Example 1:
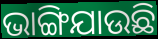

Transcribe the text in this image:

ଭାଙ୍ଗିଯାଉଛି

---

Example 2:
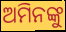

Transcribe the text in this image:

ଅମିନଙ୍କୁ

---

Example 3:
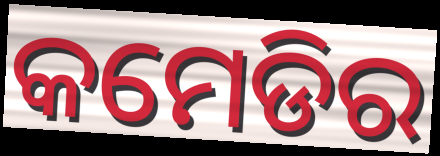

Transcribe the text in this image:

କମେଡିର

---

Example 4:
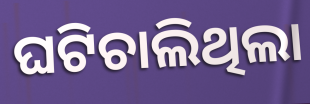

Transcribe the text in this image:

ଘଟିଚାଲିଥିଲା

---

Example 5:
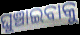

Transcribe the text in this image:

ଘୁଞ୍ଚାଇବାକୁ